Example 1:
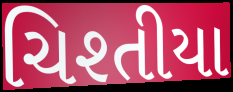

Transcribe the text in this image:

ચિશ્તીયા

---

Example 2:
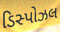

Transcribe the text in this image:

ડિસ્પોઝલ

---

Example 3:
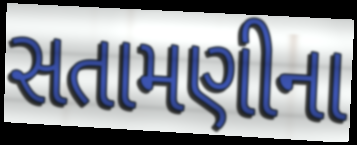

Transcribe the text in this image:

સતામણીના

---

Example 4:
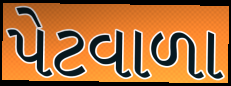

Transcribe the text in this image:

પેટવાળા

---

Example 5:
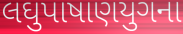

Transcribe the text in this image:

લઘુપાષાણયુગના